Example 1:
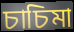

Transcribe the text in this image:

চাচিমা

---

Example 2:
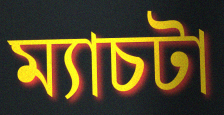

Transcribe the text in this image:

ম্যাচটা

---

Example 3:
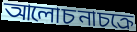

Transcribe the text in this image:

আলোচনাচক্রে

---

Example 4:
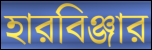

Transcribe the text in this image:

হারবিঞ্জার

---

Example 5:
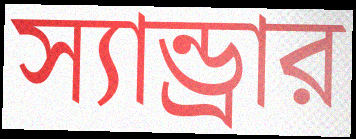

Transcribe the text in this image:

স্যান্ড্রার